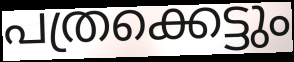
പത്രക്കെട്ടും